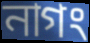
নাগং